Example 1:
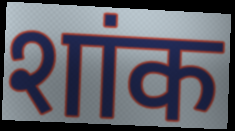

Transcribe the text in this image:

शांक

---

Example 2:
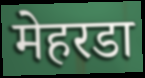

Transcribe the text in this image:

मेहरडा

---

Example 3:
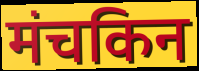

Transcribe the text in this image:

मंचकिन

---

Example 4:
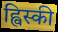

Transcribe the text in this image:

ह्विस्की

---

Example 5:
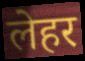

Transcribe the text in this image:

लेहर